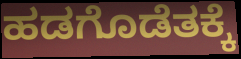
ಹಡಗೊಡೆತಕ್ಕೆ